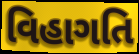
વિહાગતિ